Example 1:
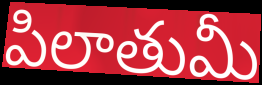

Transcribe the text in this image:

పిలాతుమీ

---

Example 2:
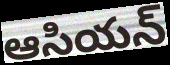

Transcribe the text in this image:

ఆసియన్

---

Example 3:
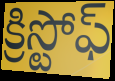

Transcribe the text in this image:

క్రిస్టోఫ్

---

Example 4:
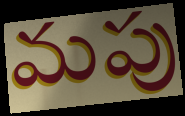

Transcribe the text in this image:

మపు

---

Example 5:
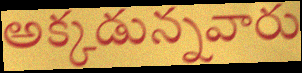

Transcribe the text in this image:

అక్కడున్నవారు